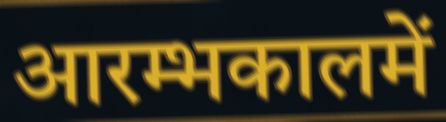
आरम्भकालमें